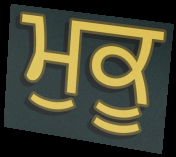
ਮੁਕੂ